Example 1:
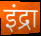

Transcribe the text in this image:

इंद्रा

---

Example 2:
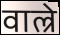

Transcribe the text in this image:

वाल्रे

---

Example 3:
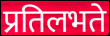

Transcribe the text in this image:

प्रतिलभते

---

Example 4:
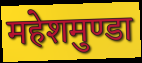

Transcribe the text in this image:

महेशमुण्डा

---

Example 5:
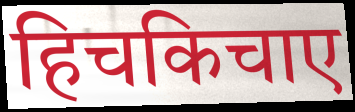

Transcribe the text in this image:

हिचकिचाए